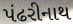
પંઢરીનાથ